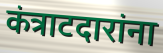
कंत्राटदारांना